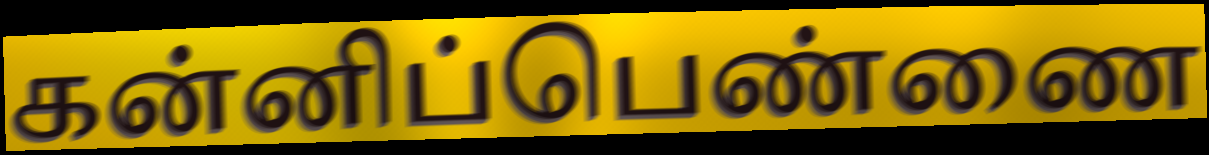
கன்னிப்பெண்ணை